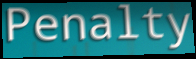
Penalty